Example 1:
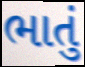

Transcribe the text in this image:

ભાતું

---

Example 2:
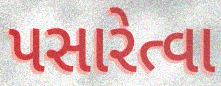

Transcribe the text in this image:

પસારેત્વા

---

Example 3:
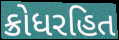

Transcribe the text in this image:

ક્રોધરહિત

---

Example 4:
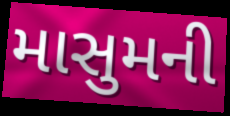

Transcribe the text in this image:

માસુમની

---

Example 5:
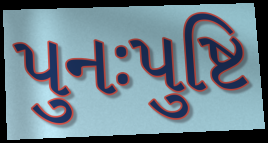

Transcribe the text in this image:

પુનઃપુષ્ટિ